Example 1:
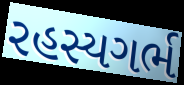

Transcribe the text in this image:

રહસ્યગર્ભ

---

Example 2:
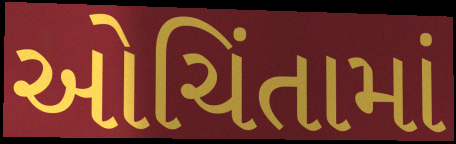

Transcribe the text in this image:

ઓચિંતામાં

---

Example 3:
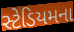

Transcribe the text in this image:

સ્ટેડિયમના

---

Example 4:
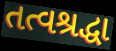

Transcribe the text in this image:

તત્વશ્રદ્ધા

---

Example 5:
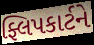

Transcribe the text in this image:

ફ્લિપકાર્ટને